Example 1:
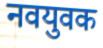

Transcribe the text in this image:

नवयुवक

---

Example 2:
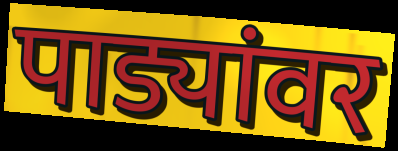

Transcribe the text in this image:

पाड्यांवर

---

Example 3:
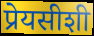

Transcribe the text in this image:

प्रेयसीशी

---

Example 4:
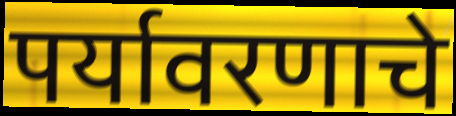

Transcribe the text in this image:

पर्यावरणाचे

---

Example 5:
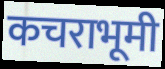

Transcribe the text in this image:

कचराभूमी